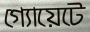
গ্যোয়েটে